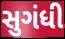
સુગંધી